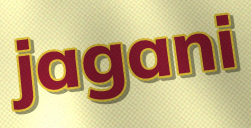
jagani